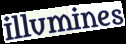
illumines